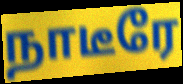
நாடீரே